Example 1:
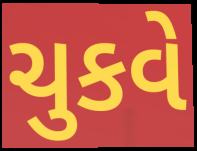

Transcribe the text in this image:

ચુકવે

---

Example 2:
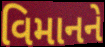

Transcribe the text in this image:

વિમાનને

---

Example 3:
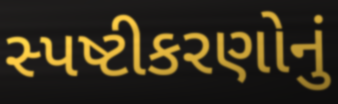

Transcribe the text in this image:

સ્પષ્ટીકરણોનું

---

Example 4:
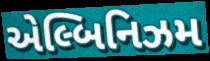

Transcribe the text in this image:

એલ્બિનિઝમ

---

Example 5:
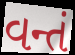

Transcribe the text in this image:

વન્તં